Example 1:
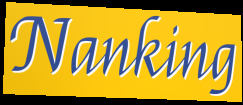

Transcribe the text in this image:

Nanking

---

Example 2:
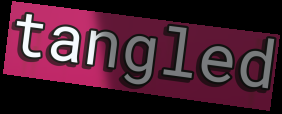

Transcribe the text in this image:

tangled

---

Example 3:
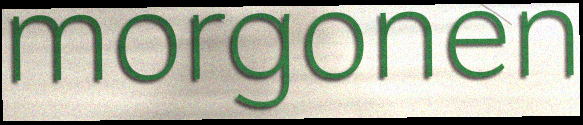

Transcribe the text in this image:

morgonen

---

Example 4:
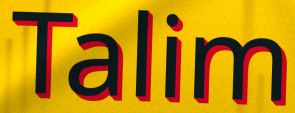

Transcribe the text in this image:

Talim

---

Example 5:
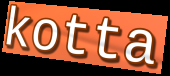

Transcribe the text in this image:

kotta